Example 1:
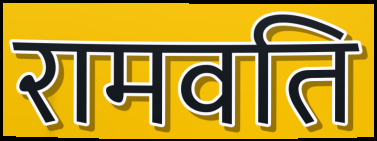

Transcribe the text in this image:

रामवति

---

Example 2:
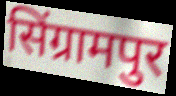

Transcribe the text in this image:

सिंग्रामपुर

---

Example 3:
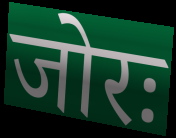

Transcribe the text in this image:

जोरः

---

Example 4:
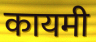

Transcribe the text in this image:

कायमी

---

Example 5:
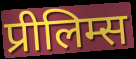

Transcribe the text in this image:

प्रीलिम्स